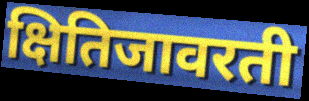
क्षितिजावरती